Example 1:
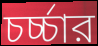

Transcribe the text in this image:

চর্চ্চার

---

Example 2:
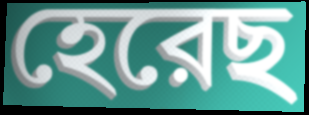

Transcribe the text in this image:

হেরেছ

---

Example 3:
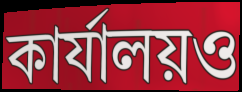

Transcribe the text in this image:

কার্যালয়ও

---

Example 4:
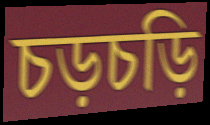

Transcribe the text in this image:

চড়চড়ি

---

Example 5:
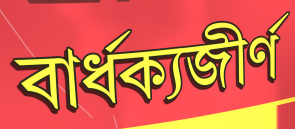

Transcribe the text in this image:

বার্ধক্যজীর্ণ